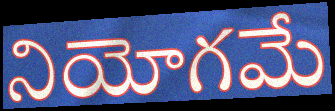
నియోగమే